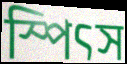
স্পিৎস